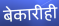
बेकारीही